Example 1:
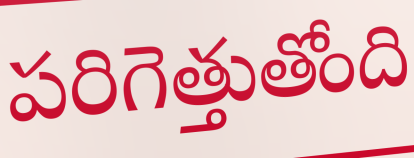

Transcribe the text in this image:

పరిగెత్తుతోంది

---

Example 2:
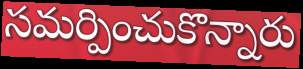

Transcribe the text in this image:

సమర్పించుకొన్నారు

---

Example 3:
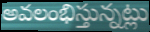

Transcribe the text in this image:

అవలంభిస్తున్నట్లు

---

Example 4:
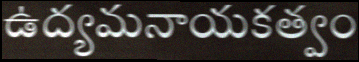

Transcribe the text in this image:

ఉద్యమనాయకత్వం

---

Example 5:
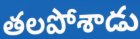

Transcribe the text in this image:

తలపోశాడు